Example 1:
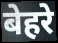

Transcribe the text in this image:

बेहरे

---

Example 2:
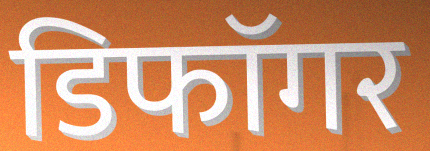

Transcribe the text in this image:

डिफॉगर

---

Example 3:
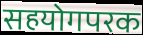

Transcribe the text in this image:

सहयोगपरक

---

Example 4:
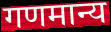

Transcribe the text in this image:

गणमान्‍य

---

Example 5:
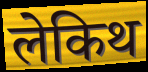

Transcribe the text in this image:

लेकिथ